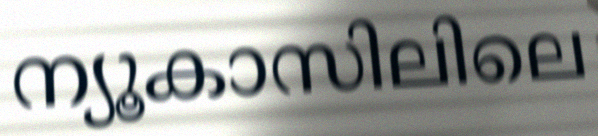
ന്യൂകാസിലിലെ